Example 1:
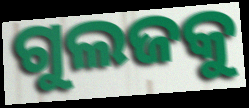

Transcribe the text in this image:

ଗୁଲଜକୁ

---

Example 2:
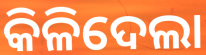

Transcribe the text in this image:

କିଳିଦେଲା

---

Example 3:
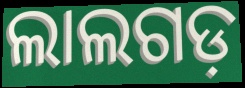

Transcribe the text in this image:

ଲାଲଗଡ଼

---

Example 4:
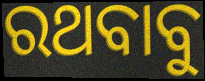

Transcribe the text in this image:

ରଥବାବୁ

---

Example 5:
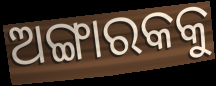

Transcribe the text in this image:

ଅଙ୍ଗାରକକୁ